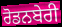
ਰੋਡਨਬੇਰੀ